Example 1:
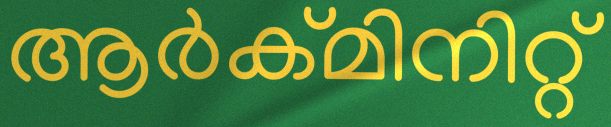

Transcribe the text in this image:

ആർക്മിനിറ്റ്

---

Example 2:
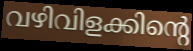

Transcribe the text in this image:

വഴിവിളക്കിന്റെ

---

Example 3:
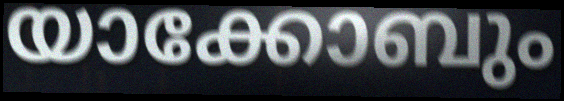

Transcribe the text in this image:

യാക്കോബും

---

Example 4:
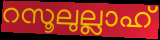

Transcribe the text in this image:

റസൂലുല്ലാഹ്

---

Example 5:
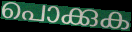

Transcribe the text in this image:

പൊക്കുക